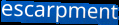
escarpment